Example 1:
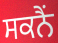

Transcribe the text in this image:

ਸਕਨੈਂ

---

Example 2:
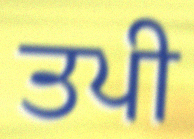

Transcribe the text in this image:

ਤਪੀ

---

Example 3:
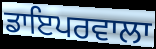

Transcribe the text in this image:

ਡਾਇਪਰਵਾਲਾ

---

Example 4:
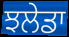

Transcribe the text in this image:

ਝਲੇਡਾ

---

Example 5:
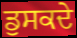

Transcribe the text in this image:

ਡੁਸਕਦੇ